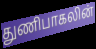
துணிபாகலின்